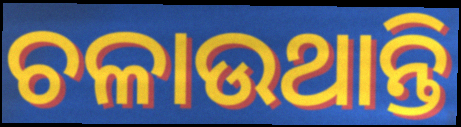
ଚଳାଉଥାନ୍ତି